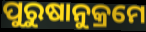
ପୁରୁଷାନୁକ୍ରମେ